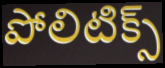
పోలిటిక్స్